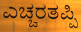
ಎಚ್ಚರತಪ್ಪಿ